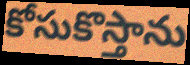
కోసుకొస్తాను